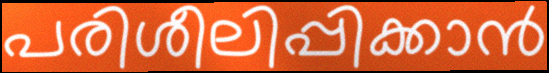
പരിശീലിപ്പിക്കാൻ